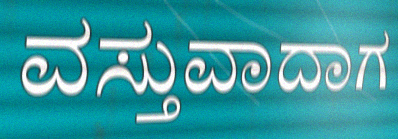
ವಸ್ತುವಾದಾಗ